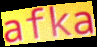
afka